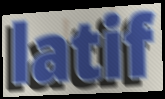
latif